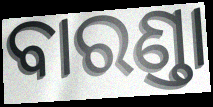
ବାରଣ୍ଡା